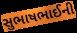
સુભાષભાઈની